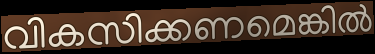
വികസിക്കണമെങ്കിൽ